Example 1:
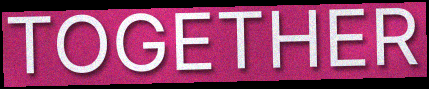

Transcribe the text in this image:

TOGETHER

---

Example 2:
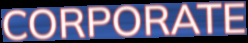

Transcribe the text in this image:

CORPORATE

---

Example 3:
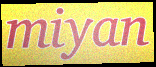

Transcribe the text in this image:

miyan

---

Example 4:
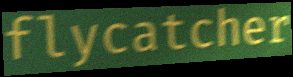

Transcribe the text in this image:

flycatcher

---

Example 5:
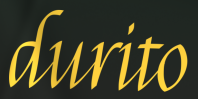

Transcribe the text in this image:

durito